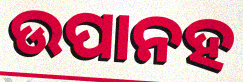
ଉପାନହ